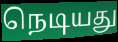
நெடியது